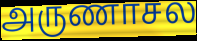
அருணாசல